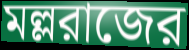
মল্লরাজের